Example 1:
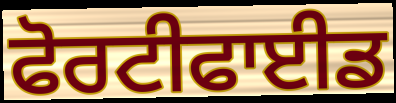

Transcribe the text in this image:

ਫੋਰਟੀਫਾਈਡ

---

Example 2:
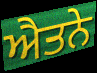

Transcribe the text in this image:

ਐਤਨੇ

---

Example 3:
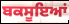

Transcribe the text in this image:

ਬਕਸੂਇਆਂ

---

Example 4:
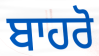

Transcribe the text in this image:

ਬਾਹਰੋ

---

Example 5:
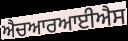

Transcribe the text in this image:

ਐਚਆਰਆਈਐਸ